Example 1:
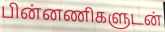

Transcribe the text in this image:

பின்னணிகளுடன்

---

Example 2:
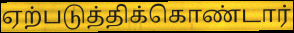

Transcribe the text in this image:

ஏற்படுத்திக்கொண்டார்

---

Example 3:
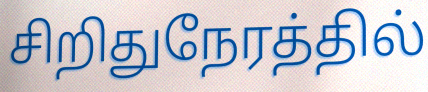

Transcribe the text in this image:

சிறிதுநேரத்தில்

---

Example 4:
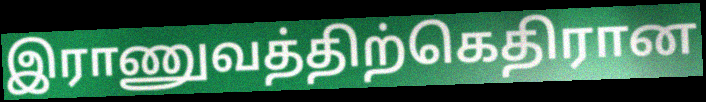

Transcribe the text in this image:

இராணுவத்திற்கெதிரான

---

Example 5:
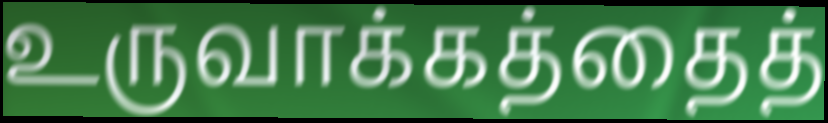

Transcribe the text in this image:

உருவாக்கத்தைத்